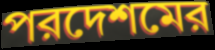
পরদেশমের